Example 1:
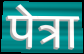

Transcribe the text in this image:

पेत्रा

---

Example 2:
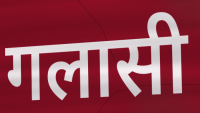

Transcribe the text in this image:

गलासी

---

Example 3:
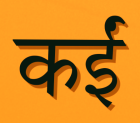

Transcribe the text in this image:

कईं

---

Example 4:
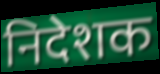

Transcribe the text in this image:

निदेशक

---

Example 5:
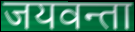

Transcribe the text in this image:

जयवन्ता